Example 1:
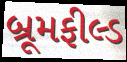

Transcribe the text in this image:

બ્રૂમફીલ્ડ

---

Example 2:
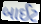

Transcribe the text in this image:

બાઈટ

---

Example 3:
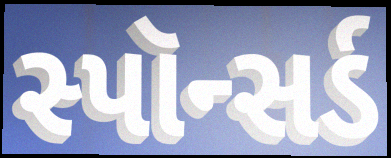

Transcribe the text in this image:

સ્પૉન્સર્ડ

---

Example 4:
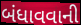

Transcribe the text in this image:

બંધાવવાની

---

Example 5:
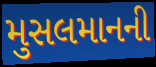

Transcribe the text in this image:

મુસલમાનની